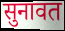
सुनावत